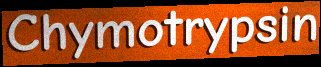
Chymotrypsin